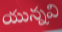
యున్నవి